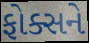
ફોક્સને